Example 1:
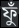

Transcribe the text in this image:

ফুঁ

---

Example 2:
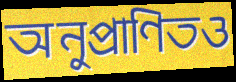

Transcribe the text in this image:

অনুপ্রাণিতও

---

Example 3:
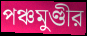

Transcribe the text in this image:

পঞ্চমুণ্ডীর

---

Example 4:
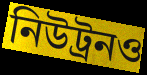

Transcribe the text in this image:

নিউট্রনও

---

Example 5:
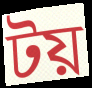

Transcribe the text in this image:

টয়